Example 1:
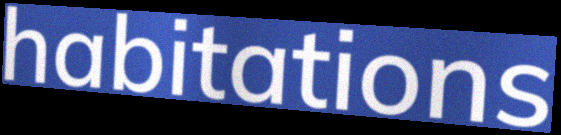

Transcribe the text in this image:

habitations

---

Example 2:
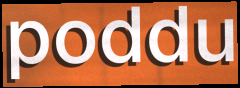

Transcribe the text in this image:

poddu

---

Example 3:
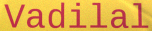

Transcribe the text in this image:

Vadilal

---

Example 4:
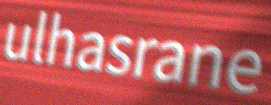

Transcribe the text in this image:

ulhasrane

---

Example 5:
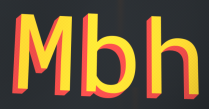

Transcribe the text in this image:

Mbh